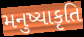
મનુષ્યાકૃતિ